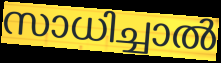
സാധിച്ചാൽ